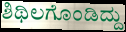
ಶಿಥಿಲಗೊಂಡಿದ್ದು